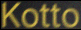
Kotto